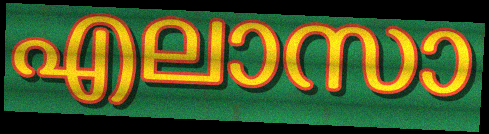
എലാസാ